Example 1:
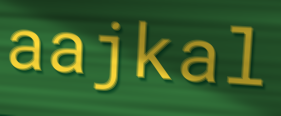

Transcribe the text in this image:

aajkal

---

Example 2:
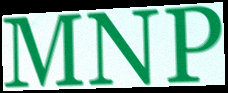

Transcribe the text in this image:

MNP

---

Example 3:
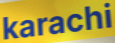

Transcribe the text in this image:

karachi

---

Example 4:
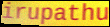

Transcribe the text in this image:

irupathu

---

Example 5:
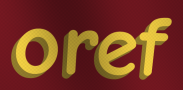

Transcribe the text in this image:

oref